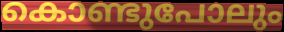
കൊണ്ടുപോലും